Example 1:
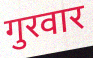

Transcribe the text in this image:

गुरवार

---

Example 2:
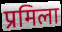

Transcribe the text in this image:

प्रमिला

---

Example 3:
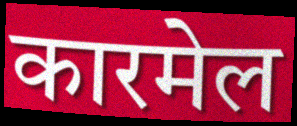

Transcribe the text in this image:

कारमेल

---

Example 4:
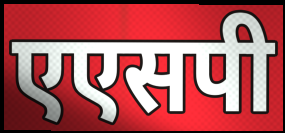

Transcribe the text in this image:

एएसपी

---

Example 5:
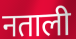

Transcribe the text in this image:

नताली